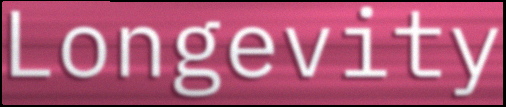
Longevity